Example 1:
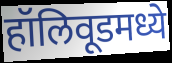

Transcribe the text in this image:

हॉलिवूडमध्ये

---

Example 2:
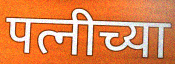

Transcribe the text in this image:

पत्नीच्या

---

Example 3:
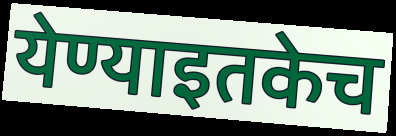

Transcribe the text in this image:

येण्याइतकेच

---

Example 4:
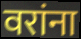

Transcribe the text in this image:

वरांना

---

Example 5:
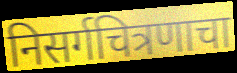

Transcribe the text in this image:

निसर्गचित्रणाचा